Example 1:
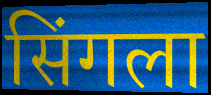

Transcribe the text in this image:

सिंगला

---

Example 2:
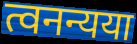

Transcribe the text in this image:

त्वनन्यया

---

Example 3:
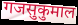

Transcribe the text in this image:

गजसुकुमाल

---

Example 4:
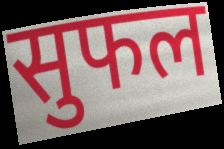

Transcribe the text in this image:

सुफल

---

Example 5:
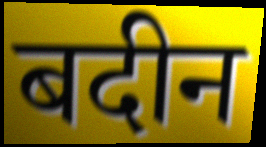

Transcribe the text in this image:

बदीन